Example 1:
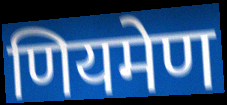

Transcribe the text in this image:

णियमेण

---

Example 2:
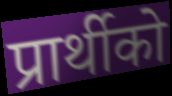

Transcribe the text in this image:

प्रार्थीको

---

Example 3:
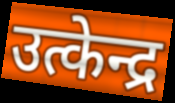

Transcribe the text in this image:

उत्केन्द्र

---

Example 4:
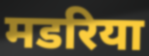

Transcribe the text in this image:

मडरिया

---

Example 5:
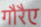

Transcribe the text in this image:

गौरैए